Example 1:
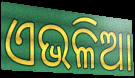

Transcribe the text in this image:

ଏଭଳିଆ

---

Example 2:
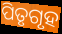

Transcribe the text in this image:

ପିତୃଗୃହ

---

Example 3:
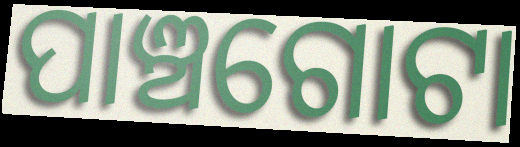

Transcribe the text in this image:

ପାଞ୍ଚଗୋଟା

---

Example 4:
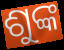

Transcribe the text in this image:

ଶୁଙ୍କ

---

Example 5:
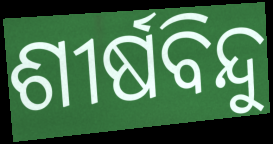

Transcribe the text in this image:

ଶୀର୍ଷବିନ୍ଦୁ